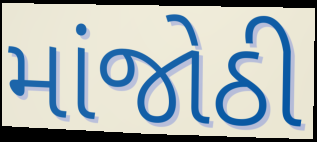
માંજોઠી